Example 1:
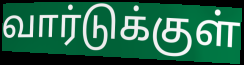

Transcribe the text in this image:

வார்டுக்குள்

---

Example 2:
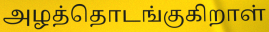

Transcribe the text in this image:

அழத்தொடங்குகிறாள்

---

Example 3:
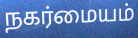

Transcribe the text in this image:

நகர்மையம்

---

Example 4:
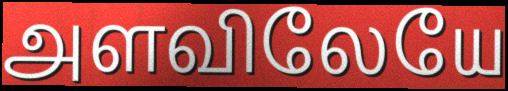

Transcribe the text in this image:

அளவிலேயே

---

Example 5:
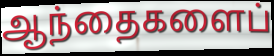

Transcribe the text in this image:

ஆந்தைகளைப்